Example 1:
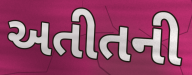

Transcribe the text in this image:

અતીતની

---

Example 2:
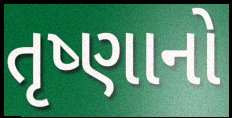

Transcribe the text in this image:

તૃષ્ણાનો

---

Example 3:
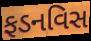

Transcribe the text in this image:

ફડનવિસ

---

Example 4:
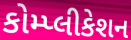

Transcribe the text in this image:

કોમ્પ્લીકેશન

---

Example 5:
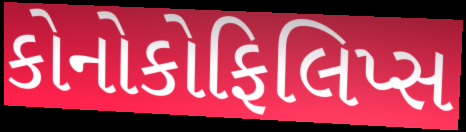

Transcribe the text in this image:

કોનોકોફિલિપ્સ